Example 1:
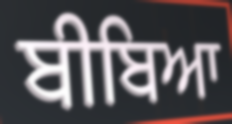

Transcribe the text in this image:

ਬੀਬਿਆ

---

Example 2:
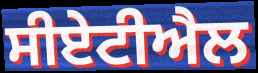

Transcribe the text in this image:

ਸੀਏਟੀਐਲ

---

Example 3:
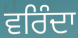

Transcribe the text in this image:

ਵਰਿੰਦਾ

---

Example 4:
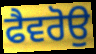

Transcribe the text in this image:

ਫੈਵਰੋਉ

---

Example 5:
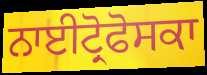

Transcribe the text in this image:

ਨਾਈਟ੍ਰੋਫੋਸਕਾ